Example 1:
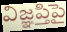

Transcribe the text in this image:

విజ్ఞప్తిపై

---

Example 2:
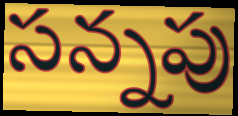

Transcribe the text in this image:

సన్నపు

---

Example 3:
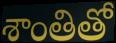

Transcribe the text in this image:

శాంతితో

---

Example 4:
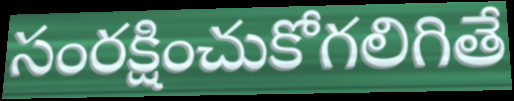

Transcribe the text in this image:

సంరక్షించుకోగలిగితే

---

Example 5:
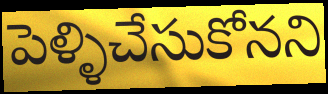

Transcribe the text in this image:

పెళ్ళిచేసుకోనని